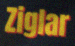
Ziglar